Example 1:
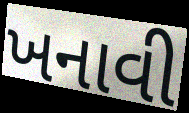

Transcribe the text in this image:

ખનાવી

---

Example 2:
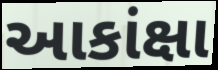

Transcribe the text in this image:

આકાંક્ષા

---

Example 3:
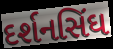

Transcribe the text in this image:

દર્શનસિંઘ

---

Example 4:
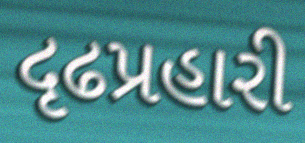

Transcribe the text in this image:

દૃઢપ્રહારી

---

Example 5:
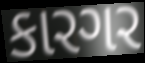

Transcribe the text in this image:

કારગર